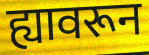
ह्यावरून